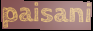
paisani